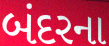
બંદરના